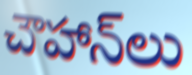
చౌహాన్‌లు